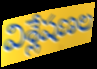
విశ్లేషణల